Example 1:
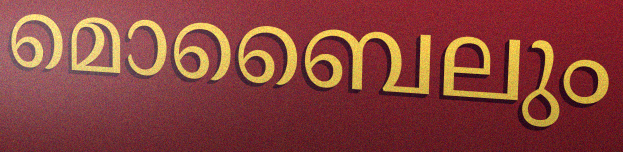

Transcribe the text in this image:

മൊബൈലും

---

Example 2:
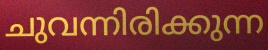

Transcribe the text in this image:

ചുവന്നിരിക്കുന്ന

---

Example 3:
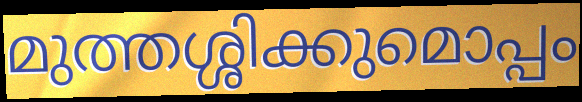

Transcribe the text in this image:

മുത്തശ്ശിക്കുമൊപ്പം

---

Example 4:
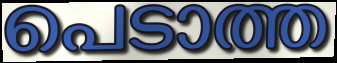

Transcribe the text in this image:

പെടാത്ത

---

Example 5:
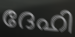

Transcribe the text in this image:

ദേഹി